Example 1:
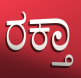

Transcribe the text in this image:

ರಕ್ತಾ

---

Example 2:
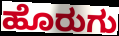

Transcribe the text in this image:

ಹೊರುಗು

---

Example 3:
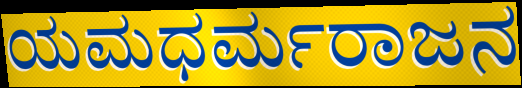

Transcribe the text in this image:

ಯಮಧರ್ಮರಾಜನ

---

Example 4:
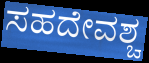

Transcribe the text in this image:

ಸಹದೇವಶ್ಚ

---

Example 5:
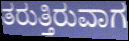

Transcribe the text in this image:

ತರುತ್ತಿರುವಾಗ